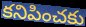
కనిపించకు